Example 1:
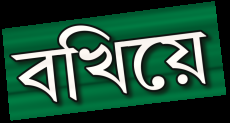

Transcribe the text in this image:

বখিয়ে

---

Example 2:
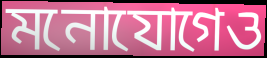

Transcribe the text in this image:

মনোযোগেও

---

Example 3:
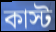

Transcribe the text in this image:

কাস্ট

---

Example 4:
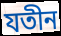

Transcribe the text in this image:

যতীন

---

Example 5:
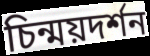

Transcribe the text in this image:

চিন্ময়দর্শন